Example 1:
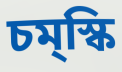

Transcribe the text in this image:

চম্‌স্কি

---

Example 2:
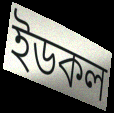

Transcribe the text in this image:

ইডকল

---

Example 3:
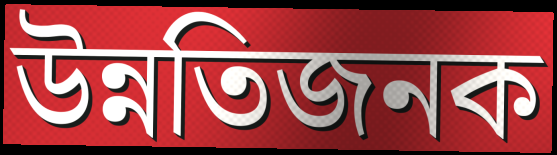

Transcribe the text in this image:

উন্নতিজনক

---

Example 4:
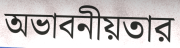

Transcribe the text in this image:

অভাবনীয়তার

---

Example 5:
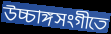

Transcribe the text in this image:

উচ্চাঙ্গসংগীতে